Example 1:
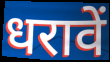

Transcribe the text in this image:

धरावें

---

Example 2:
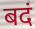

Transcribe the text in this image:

बदं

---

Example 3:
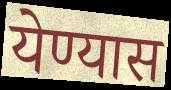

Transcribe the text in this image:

येण्यास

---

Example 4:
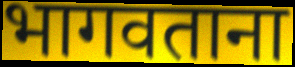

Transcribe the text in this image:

भागवताना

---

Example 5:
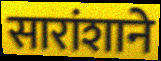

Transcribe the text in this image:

सारांशाने